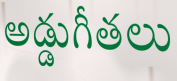
అడ్డుగీతలు